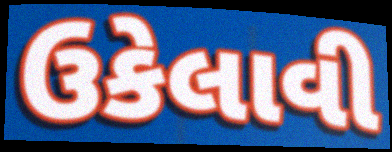
ઉકેલાવી